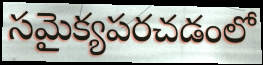
సమైక్యపరచడంలో